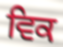
ਵਿਕ